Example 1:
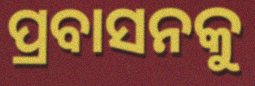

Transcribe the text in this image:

ପ୍ରବାସନକୁ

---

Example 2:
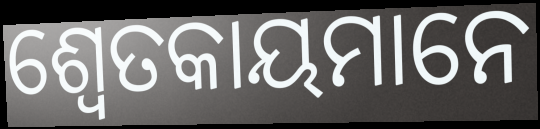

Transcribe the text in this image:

ଶ୍ୱେତକାୟମାନେ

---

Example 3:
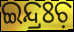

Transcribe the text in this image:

ଇନ୍ଦ୍ରଃଚ଼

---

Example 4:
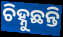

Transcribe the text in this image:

ଚିହ୍ନୁଛନ୍ତି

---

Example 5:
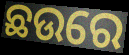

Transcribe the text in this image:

ଛଉରେ